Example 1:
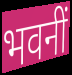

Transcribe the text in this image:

भवनीं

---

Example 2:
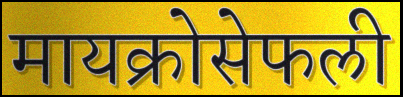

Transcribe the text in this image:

मायक्रोसेफली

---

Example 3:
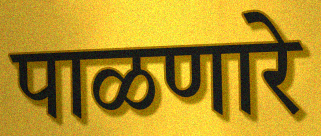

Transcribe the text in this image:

पाळणारे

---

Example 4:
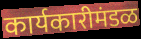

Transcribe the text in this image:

कार्यकारीमंडळ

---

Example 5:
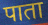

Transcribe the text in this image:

पाता